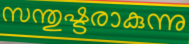
സന്തുഷ്ടരാകുന്നു